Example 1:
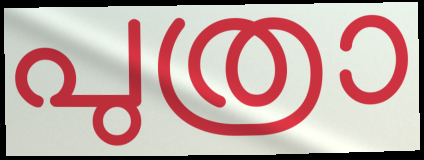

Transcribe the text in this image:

പുത്രാ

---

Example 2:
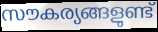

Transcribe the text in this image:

സൗകര്യങ്ങളുണ്ട്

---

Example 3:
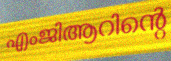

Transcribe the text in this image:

എംജിആറിന്റെ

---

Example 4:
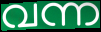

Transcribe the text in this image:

വന്ന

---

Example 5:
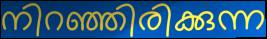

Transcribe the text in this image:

നിറഞ്ഞിരിക്കുന്ന